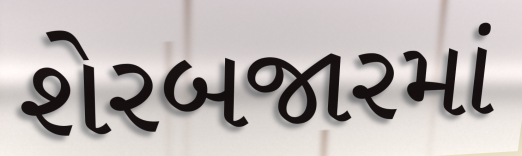
શેરબજારમાં